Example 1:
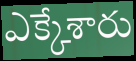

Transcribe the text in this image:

ఎక్కేశారు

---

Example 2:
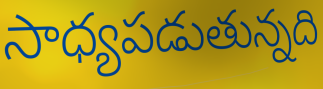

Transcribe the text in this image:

సాధ్యపడుతున్నది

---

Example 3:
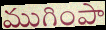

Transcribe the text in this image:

ముగింపా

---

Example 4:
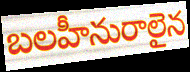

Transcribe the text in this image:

బలహీనురాలైన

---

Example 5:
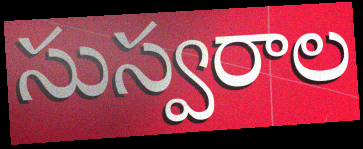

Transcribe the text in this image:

సుస్వరాల